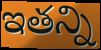
ఇతన్ని